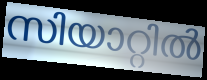
സിയാറ്റിൽ